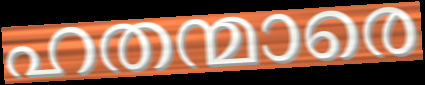
ഹതന്മാരെ